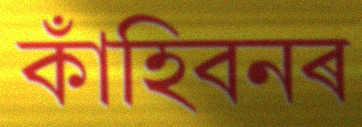
কাঁহিবনৰ